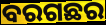
ବରଗଛର